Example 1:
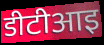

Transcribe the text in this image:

डीटीआइ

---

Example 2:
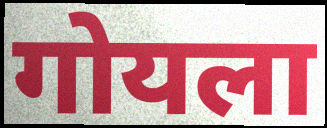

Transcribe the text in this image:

गोयला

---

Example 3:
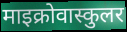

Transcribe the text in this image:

माइक्रोवास्कुलर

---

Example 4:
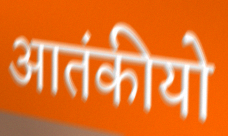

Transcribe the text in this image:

आतंकीयो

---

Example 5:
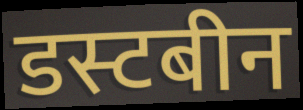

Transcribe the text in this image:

डस्टबीन